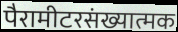
पैरामीटरसंख्यात्मक